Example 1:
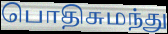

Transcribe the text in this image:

பொதிசுமந்து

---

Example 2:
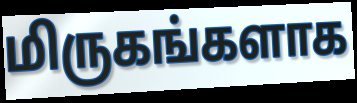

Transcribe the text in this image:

மிருகங்களாக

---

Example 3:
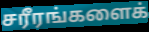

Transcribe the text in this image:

சரீரங்களைக்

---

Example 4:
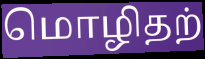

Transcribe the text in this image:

மொழிதற்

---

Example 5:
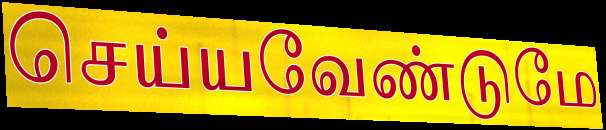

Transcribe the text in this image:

செய்யவேண்டுமே